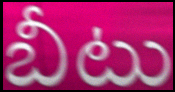
బీటు